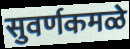
सुवर्णकमळे